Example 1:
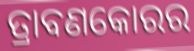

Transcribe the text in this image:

ତ୍ରାବଣକୋରର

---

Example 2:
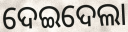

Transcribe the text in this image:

ଦେଇଦେଲା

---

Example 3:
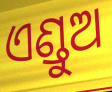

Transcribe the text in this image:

ଏଣ୍ଡୁଅ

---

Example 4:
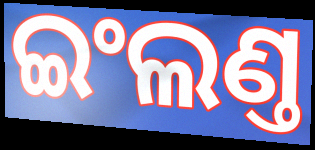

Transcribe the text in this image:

ଇଂଲଣ୍ତ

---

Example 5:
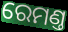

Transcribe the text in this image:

ରେମଣ୍ତ